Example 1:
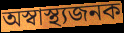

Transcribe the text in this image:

অস্বাস্থ্যজনক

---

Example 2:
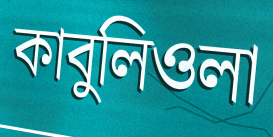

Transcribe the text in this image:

কাবুলিওলা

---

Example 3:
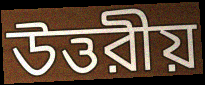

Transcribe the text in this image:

উত্তরীয়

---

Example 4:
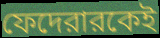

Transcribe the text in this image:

ফেদেরারকেই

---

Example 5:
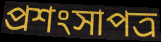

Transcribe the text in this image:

প্রশংসাপত্র